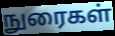
நுரைகள்